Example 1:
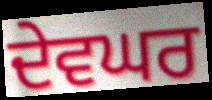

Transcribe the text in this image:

ਦੇਵਘਰ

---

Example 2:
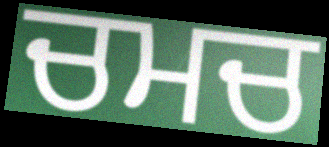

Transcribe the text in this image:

ਚਮਚ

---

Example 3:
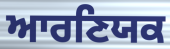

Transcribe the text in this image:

ਆਰਣਿਯਕ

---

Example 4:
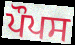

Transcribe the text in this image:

ਪੌਪਸ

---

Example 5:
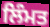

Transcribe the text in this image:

ਲਿੰਮਤ